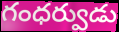
గంధర్వుడు